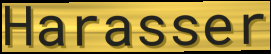
Harasser